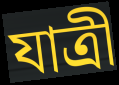
যাত্ৰী